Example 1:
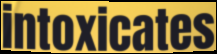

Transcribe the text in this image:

intoxicates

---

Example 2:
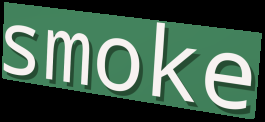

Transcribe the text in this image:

smoke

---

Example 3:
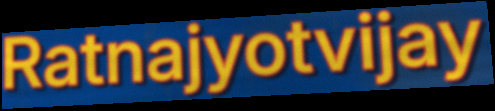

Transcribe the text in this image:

Ratnajyotvijay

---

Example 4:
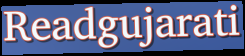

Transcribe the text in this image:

Readgujarati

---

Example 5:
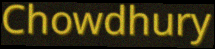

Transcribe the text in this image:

Chowdhury